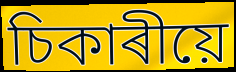
চিকাৰীয়ে